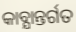
କାବ୍ଯାନ୍ତର୍ଗତ